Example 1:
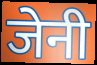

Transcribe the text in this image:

जेनी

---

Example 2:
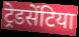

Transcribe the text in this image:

ट्रेडसेंटिया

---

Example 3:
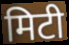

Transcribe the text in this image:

मिटी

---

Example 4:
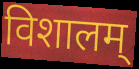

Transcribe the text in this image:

विशालम्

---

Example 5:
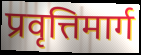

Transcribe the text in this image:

प्रवृत्तिमार्ग